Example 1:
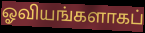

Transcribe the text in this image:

ஓவியங்களாகப்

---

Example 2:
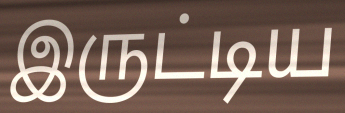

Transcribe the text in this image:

இருட்டிய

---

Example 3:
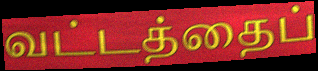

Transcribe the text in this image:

வட்டத்தைப்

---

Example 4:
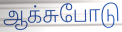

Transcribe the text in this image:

ஆக்சுபோடு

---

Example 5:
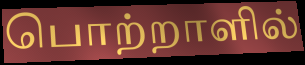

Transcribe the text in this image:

பொற்றாளில்